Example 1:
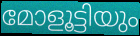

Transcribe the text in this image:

മോളൂട്ടിയും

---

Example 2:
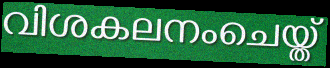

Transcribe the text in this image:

വിശകലനംചെയ്ത്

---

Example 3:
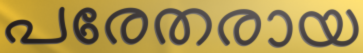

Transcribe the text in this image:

പരേതരായ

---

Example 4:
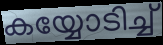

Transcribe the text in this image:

കയ്യോടിച്ച്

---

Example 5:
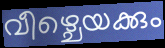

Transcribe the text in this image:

വീഴ്ചെയക്കും